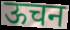
ऊचन